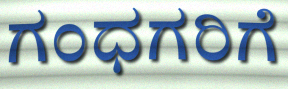
ಗಂಧಗರಿಗೆ